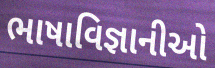
ભાષાવિજ્ઞાનીઓ